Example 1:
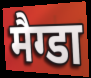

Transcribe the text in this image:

मैग्डा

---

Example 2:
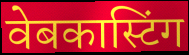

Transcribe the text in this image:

वेबकास्टिंग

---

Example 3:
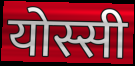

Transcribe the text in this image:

योस्सी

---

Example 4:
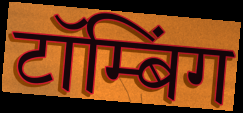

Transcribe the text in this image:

टॉम्बिंग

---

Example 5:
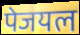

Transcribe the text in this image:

पेजयल